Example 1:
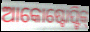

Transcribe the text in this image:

ଆକୋଷ୍ଟୋପ୍ଟିକ୍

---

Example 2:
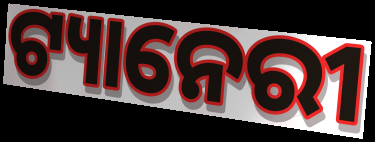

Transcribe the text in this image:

ଟ୍ୟାନେରୀ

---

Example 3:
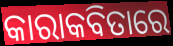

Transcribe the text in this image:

କାରାକବିତାରେ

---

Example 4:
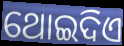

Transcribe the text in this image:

ଥୋଇଦିଏ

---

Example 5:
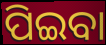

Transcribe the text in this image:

ପିଇବା